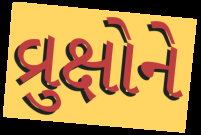
વ્રુક્ષોને